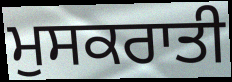
ਮੁਸਕਰਾਤੀ